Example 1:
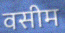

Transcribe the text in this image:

वसीम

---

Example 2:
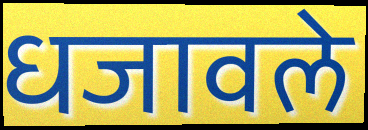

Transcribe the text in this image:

धजावले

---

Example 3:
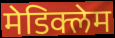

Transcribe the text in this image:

मेडिक्लेम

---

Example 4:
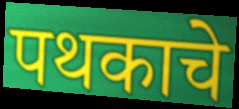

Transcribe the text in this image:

पथकाचे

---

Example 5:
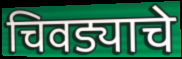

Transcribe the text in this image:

चिवड्याचे